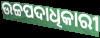
ଉଚ୍ଚପଦାଧିକାରୀ